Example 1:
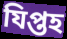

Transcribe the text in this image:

যিপ্তহ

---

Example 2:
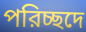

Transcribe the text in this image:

পরিচ্ছদে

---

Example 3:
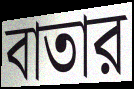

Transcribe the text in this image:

বাতার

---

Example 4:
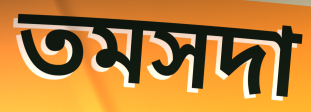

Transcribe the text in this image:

তমসদা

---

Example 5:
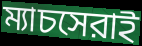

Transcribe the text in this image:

ম্যাচসেরাই